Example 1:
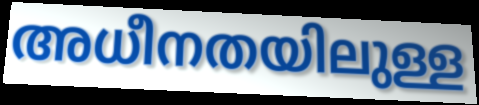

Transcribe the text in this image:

അധീനതയിലുള്ള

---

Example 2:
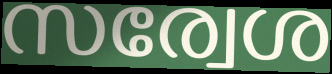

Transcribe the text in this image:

സര്വേശ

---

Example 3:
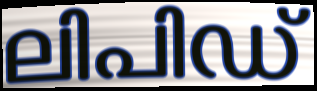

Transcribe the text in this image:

ലിപിഡ്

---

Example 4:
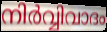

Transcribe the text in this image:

നിർവ്വിവാദം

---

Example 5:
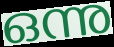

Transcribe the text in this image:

ഒന്നു